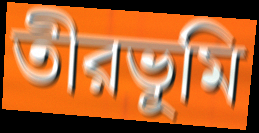
তীরভূমি